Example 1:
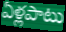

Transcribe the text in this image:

ఏళ్లపాటు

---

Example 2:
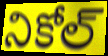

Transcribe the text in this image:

నికోల్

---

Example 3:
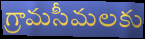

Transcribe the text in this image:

గ్రామసీమలకు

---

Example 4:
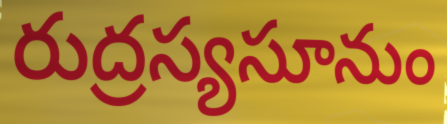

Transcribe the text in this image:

రుద్రస్యసూనుం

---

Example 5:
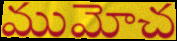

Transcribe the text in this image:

ముమోచ